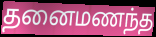
தனைமணந்த